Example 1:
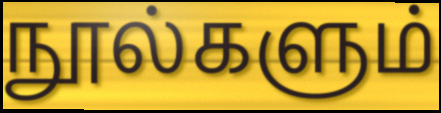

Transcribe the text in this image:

நூல்களும்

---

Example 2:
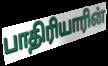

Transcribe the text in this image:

பாதிரியாரின்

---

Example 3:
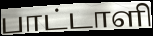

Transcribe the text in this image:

பாட்டாளி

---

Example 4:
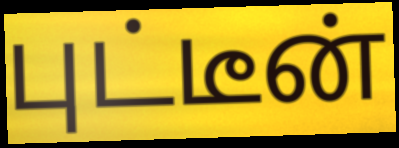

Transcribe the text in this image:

புட்டீன்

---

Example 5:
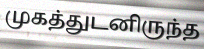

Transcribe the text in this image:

முகத்துடனிருந்த